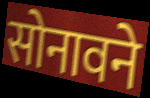
सोनावने